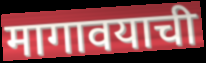
मागावयाची